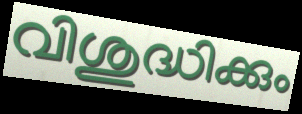
വിശുദ്ധിക്കും